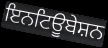
ਇਨਟਿਊਬੇਸ਼ਨ